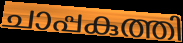
ചാപ്പകുത്തി